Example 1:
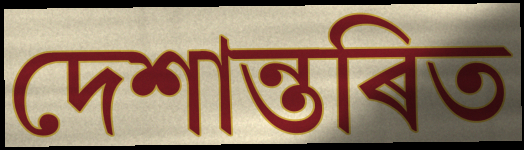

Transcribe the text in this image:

দেশান্তৰিত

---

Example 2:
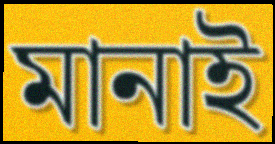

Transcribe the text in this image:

মানাই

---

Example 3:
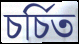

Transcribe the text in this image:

চৰ্চিত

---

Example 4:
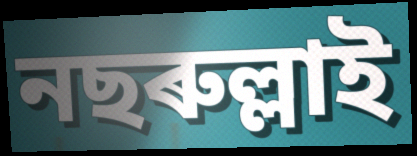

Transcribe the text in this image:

নছৰুল্লাই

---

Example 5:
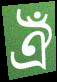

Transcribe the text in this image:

ঐঁ